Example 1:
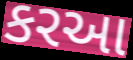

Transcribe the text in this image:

કરઆ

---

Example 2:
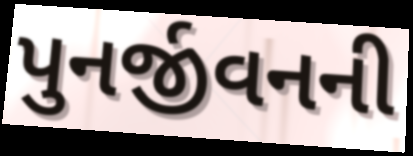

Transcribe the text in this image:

પુનર્જીવનની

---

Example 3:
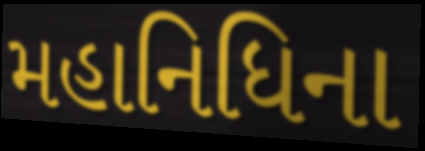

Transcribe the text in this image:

મહાનિધિના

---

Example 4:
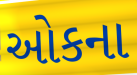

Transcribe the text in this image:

ઓકના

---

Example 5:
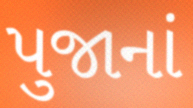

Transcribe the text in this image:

પુજાનાં